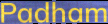
Padham